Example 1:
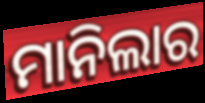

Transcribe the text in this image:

ମାନିଲାର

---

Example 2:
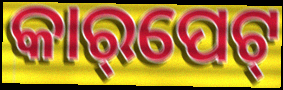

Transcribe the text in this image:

କାର୍‌ପେଟ୍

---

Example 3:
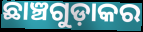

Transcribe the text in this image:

ଛାଞ୍ଚଗୁଡ଼ାକର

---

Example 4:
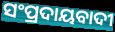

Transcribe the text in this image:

ସଂପ୍ରଦାୟବାଦୀ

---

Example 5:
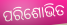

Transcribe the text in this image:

ପରିଶୋଭିତ